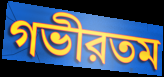
গভীরতম